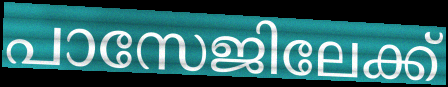
പാസേജിലേക്ക്